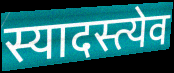
स्यादस्त्येव